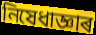
নিষেধাজ্ঞাৰ